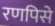
रणपिसे